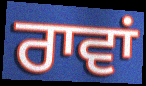
ਰਾਵਾਂ